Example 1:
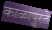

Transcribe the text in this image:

काळापुरते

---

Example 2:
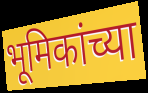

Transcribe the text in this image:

भूमिकांच्या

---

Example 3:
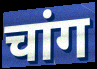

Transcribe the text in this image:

चांग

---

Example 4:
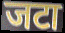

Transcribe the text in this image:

जटा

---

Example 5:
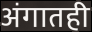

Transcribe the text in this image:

अंगातही